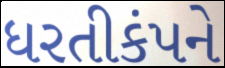
ધરતીકંપને